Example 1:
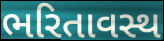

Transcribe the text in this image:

ભરિતાવસ્થ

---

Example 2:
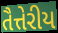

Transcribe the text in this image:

તૈત્તેરીય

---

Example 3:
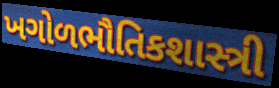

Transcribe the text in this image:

ખગોળભૌતિકશાસ્ત્રી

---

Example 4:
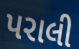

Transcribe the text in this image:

પરાલી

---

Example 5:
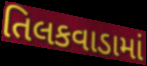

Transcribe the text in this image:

તિલકવાડામાં